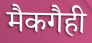
मैकगैही